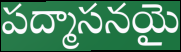
పద్మాసనయై